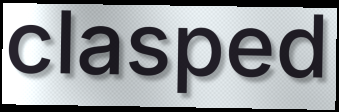
clasped